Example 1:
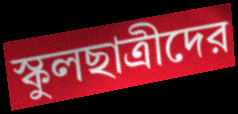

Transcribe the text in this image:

স্কুলছাত্রীদের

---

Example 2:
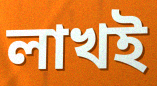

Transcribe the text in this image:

লাখই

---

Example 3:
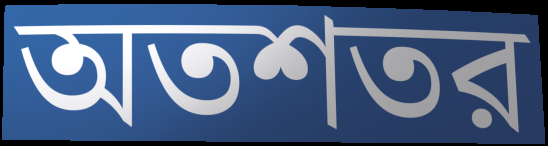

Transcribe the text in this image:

অতশতর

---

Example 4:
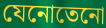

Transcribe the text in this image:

যেনোতেনো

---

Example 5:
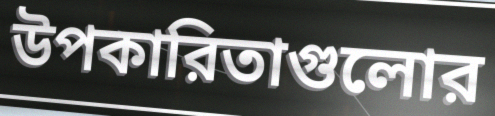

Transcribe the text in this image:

উপকারিতাগুলোর